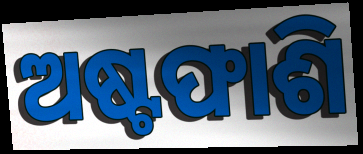
ଅଷ୍ଟଫାଶି